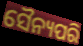
ସୈନ୍ୟପରି